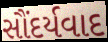
સૌંદર્યવાદ